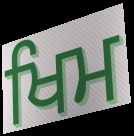
ਖਿਮ